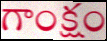
గాంక్షం